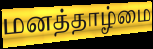
மனத்தாழ்மை